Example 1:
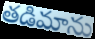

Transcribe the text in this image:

తడిమాను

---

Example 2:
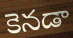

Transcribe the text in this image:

కెనడా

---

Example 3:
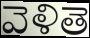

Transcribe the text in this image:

వెళితె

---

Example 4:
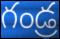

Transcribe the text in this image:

గండ్ర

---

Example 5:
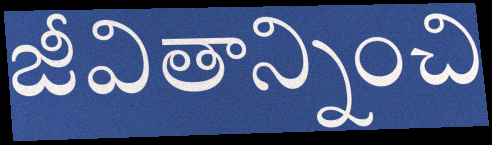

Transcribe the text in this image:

జీవితాన్నించి